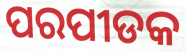
ପରପୀଡକ